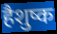
हैशुष्क